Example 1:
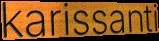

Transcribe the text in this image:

karissanti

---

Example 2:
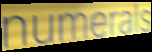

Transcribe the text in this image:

numerals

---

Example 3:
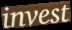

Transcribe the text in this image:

invest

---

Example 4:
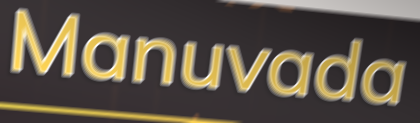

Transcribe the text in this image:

Manuvada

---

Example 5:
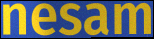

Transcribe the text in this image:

nesam